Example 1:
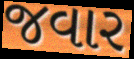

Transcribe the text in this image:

જવાર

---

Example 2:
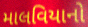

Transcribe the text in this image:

માલવિયાનો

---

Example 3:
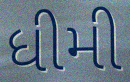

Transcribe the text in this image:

ધીમી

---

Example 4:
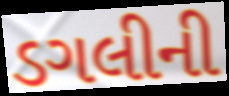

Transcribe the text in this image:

ડગલીની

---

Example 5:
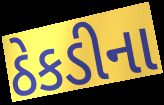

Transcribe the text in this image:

ઠેકડીના